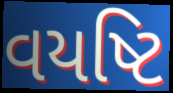
વયષ્ટિ